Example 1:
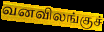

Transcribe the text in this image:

வனவிலங்குச்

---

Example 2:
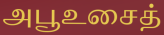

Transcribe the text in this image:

அபூஉசைத்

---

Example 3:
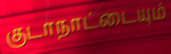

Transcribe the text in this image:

குடாநாட்டையும்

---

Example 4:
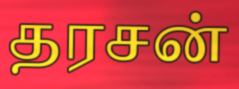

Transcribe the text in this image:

தரசன்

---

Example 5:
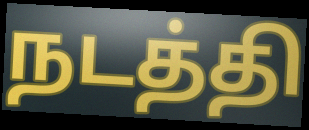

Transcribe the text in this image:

நடத்தி